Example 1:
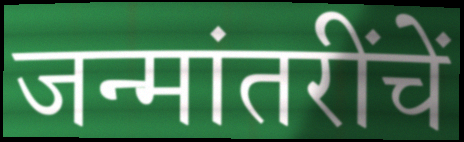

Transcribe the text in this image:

जन्मांतरींचें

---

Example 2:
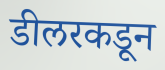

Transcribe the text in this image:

डीलरकडून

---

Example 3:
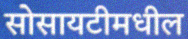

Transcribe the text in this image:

सोसायटीमधील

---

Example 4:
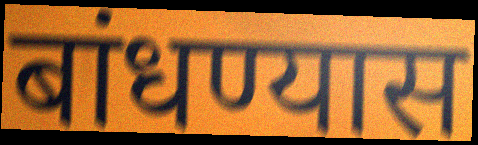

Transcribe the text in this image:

बांधण्यास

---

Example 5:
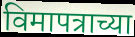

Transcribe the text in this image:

विमापत्राच्या